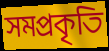
সমপ্রকৃতি